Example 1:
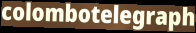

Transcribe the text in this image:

colombotelegraph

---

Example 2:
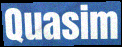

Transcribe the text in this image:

Quasim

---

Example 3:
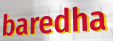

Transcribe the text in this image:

baredha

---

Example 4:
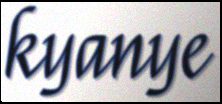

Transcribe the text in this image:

kyanye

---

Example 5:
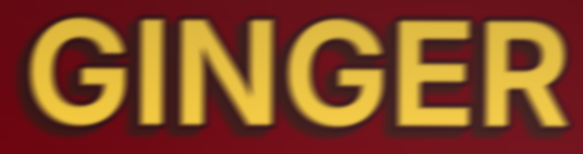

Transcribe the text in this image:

GINGER